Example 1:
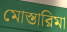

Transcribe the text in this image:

মোস্তারিমা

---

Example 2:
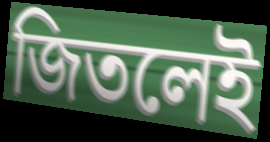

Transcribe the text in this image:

জিতলেই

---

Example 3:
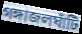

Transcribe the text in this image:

গঙ্গাজলঘাঁটি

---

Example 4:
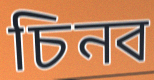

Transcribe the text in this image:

চিনব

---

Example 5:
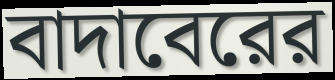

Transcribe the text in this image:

বাদাবেরের